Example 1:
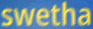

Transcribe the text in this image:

swetha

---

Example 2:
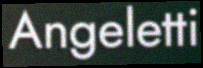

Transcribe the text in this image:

Angeletti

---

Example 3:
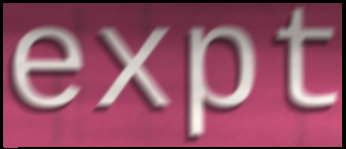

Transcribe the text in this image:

expt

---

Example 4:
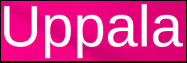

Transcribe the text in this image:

Uppala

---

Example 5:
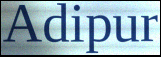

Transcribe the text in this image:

Adipur